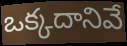
ఒక్కదానివే